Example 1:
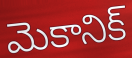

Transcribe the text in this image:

మెకానిక్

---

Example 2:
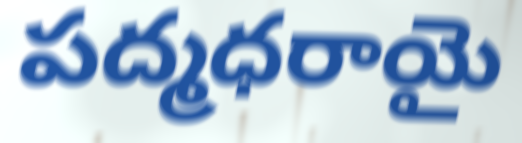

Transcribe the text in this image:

పద్మధరాయై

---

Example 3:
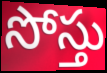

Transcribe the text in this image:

సోస్తు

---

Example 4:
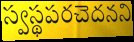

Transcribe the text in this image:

స్వస్థపరచెదనని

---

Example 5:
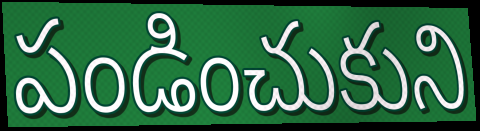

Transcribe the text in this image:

పండించుకుని